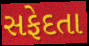
સફેદતા